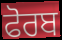
ਫੋਰਬ